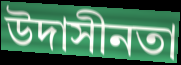
উদাসীনতা